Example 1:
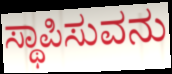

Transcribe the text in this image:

ಸ್ಥಾಪಿಸುವನು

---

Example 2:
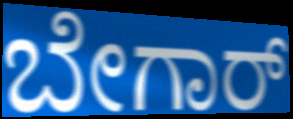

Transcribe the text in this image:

ಬೇಗಾರ್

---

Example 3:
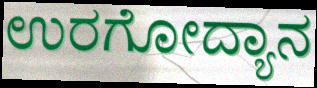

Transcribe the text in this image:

ಉರಗೋದ್ಯಾನ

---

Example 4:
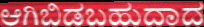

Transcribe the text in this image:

ಆಗಿಬಿಡಬಹುದಾದ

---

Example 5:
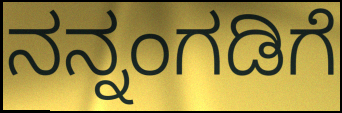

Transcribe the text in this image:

ನನ್ನಂಗಡಿಗೆ